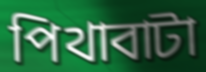
পিথাবাটা